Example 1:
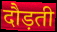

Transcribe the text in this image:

दौड़ती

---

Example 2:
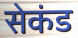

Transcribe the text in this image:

सेकंड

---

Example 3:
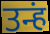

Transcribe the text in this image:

उन्हं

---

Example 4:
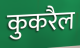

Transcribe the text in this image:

कुकरैल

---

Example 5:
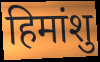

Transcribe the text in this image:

हिमांशु